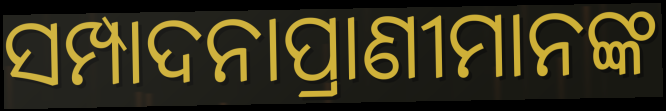
ସମ୍ପାଦନାପ୍ରାଣୀମାନଙ୍କ